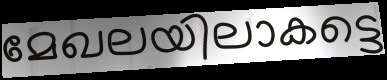
മേഖലയിലാകട്ടെ